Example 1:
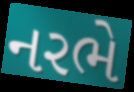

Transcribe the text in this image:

નરભે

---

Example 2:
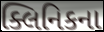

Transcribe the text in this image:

ક્લિનિકના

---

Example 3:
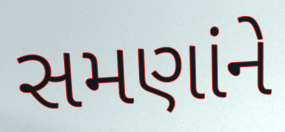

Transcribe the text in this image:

સમણાંને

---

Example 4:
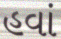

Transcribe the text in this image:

હવાં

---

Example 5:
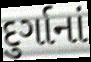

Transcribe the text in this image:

દુર્ગાનાં